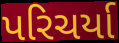
પરિચર્યા